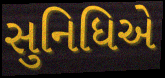
સુનિધિએ